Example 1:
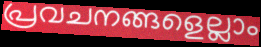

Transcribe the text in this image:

പ്രവചനങ്ങളെല്ലാം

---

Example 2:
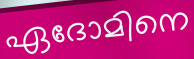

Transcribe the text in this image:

ഏദോമിനെ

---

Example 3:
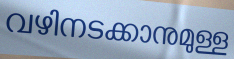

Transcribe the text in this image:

വഴിനടക്കാനുമുള്ള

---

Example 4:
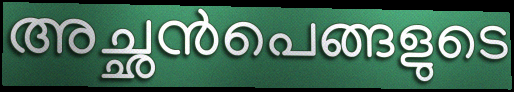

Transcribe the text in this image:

അച്ഛൻപെങ്ങളുടെ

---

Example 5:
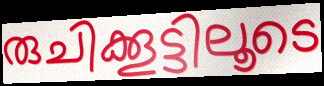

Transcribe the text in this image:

രുചിക്കൂട്ടിലൂടെ